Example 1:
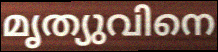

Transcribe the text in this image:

മൃത്യുവിനെ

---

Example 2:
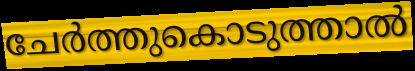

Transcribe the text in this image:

ചേർത്തുകൊടുത്താൽ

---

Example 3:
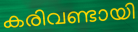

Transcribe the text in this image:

കരിവണ്ടായി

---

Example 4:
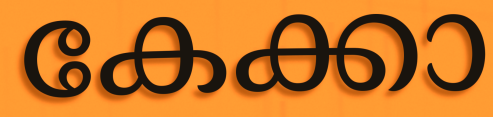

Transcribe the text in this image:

കേക്കാ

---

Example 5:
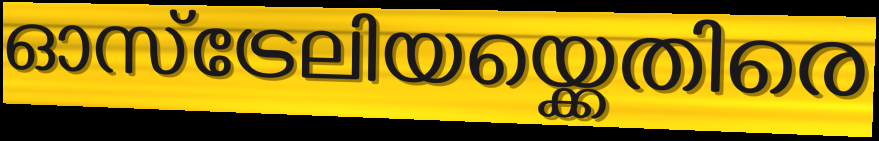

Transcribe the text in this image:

ഓസ്ട്രേലിയയ്ക്കെതിരെ